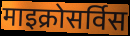
माइक्रोसर्विस